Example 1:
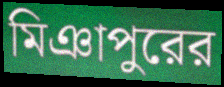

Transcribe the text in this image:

মিঞাপুরের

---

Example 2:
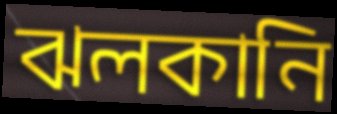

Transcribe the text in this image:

ঝলকানি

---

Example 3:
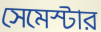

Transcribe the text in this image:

সেমেস্টার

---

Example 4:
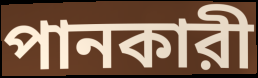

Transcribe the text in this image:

পানকারী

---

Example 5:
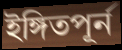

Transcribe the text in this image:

ইঙ্গিতপূর্ন